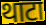
थाटा